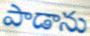
పాడాను